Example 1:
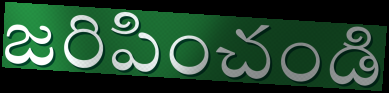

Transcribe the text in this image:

జరిపించండి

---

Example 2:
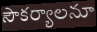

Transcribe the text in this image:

సౌకర్యాలనూ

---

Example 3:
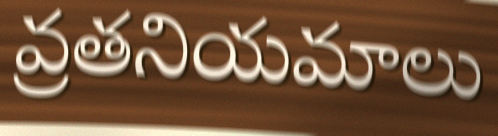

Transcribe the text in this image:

వ్రతనియమాలు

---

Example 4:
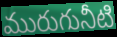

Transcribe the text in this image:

మురుగునీటి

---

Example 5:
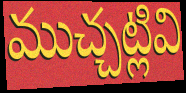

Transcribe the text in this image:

ముచ్చట్లివి